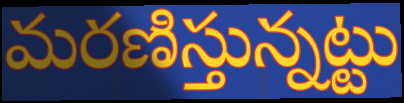
మరణిస్తున్నట్టు